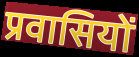
प्रवासियों